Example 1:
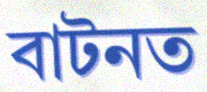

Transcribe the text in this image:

বাটনত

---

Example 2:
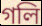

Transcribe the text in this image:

গলি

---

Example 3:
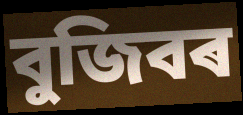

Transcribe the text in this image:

বুজিবৰ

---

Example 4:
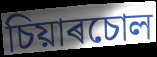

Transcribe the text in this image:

চিয়াৰচোল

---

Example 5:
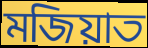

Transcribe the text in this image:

মজিয়াত